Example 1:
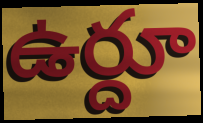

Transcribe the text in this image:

ఉర్దూ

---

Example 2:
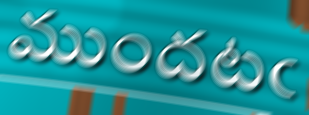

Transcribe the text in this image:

ముందటఁ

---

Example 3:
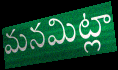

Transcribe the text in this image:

మనమిట్లా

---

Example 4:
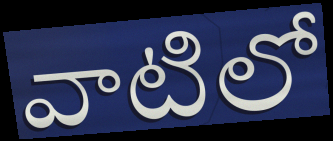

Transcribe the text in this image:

వాటిలో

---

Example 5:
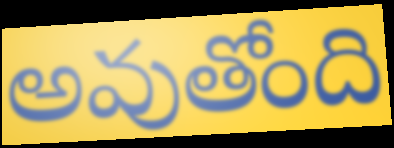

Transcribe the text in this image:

అవుతోంది